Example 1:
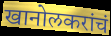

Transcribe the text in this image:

खानोलकरांचं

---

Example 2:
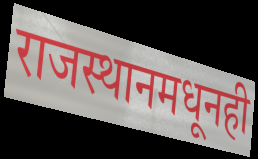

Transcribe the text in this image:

राजस्थानमधूनही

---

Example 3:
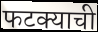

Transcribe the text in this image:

फटक्याची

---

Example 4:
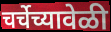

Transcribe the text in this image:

चर्चेच्यावेळी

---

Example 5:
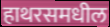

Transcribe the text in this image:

हाथरसमधील